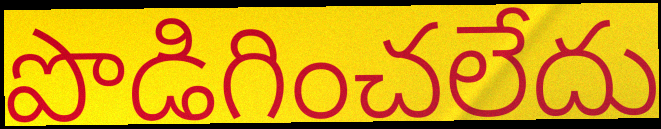
పొడిగించలేదు